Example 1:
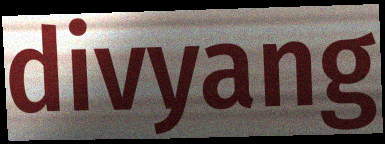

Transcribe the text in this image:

divyang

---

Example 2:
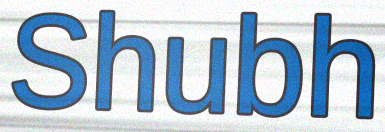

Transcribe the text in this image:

Shubh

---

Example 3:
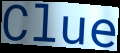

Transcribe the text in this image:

Clue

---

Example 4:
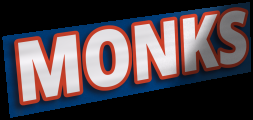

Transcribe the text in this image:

MONKS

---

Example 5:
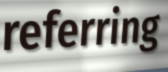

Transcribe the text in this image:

referring